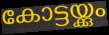
കോട്ടയ്ക്കും